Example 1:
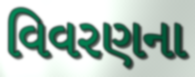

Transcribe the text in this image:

વિવરણના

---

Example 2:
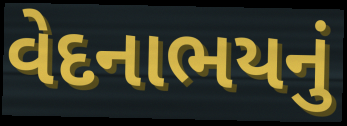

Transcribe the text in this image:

વેદનાભયનું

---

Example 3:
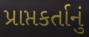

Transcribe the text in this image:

પ્રાપ્તકર્તાનું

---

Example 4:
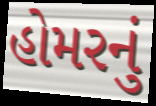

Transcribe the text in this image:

હોમરનું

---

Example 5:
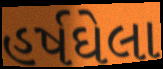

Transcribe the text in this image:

હર્ષઘેલા